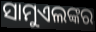
ସାମୁଏଲଙ୍କର